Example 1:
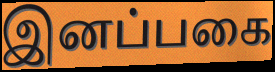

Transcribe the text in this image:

இனப்பகை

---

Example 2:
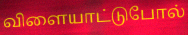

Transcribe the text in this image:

விளையாட்டுபோல்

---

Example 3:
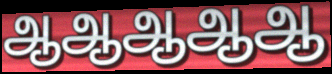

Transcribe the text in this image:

ஆஆஆஆஆ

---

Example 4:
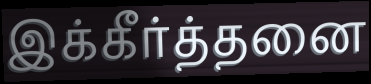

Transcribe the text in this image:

இக்கீர்த்தனை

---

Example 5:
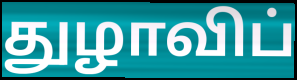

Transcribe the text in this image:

துழாவிப்